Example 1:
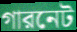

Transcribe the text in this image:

গারনেট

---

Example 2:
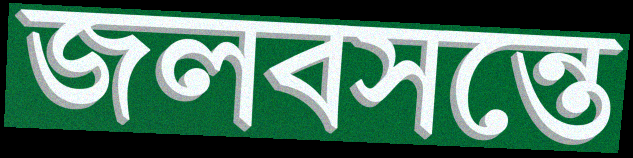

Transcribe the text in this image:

জলবসন্তে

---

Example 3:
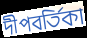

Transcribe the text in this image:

দীপবর্তিকা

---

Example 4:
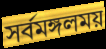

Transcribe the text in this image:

সর্বমঙ্গলময়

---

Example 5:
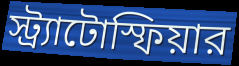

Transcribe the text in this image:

স্ট্র্যাটোস্ফিয়ার